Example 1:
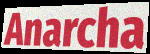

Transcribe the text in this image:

Anarcha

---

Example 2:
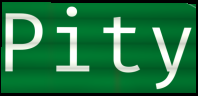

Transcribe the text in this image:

Pity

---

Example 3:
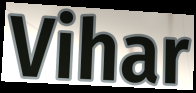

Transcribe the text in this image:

Vihar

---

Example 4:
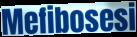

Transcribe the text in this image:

Mefibosesi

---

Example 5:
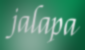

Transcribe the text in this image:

jalapa